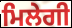
ਮਿਲੇਗੀ